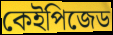
কেইপিজেড